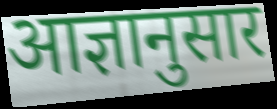
आज्ञानुसार